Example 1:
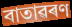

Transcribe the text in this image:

বাতাৱৰণ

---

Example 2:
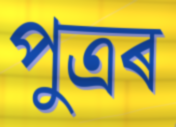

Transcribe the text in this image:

পুত্ৰৰ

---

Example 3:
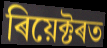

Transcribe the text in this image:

ৰিয়েক্টৰত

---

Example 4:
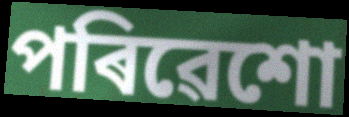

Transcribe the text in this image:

পৰিৱেশো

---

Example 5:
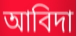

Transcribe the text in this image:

আবিদা